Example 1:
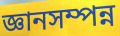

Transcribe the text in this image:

জ্ঞানসম্পন্ন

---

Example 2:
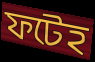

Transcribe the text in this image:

ফটেহ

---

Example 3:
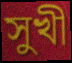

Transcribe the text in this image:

সুখী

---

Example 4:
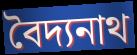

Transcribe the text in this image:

বৈদ্যনাথ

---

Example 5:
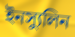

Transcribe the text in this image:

ইনস্যুলিন